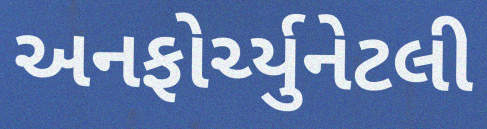
અનફોર્ચ્યુનેટલી